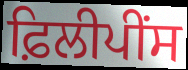
ਫ਼ਿਲੀਪੀਂਸ